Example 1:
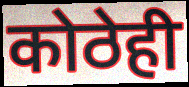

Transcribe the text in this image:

कोठेही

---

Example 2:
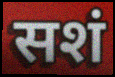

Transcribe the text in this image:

सशं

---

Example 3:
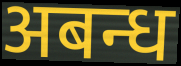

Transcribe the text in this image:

अबन्ध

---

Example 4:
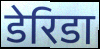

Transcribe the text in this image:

डेरिडा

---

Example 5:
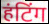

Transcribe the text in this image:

हंटिंग